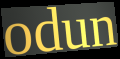
odun